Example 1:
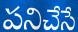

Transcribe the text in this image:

పనిచేసే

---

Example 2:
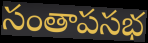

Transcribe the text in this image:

సంతాపసభ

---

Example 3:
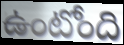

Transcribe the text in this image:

ఉంటోంది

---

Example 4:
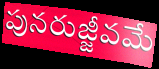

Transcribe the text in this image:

పునరుజ్జీవమే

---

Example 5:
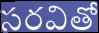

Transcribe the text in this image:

సరవితో